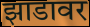
झाडावर